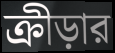
ক্রীড়ার